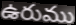
ఉరుము